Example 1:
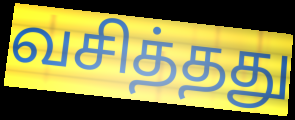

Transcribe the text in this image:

வசித்தது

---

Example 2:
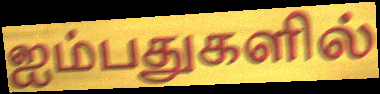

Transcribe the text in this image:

ஐம்பதுகளில்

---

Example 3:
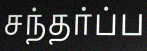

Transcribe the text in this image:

சந்தர்ப்ப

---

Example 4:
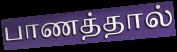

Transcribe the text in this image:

பாணத்தால்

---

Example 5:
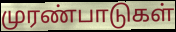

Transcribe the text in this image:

முரண்பாடுகள்